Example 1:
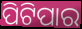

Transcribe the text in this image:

ପିଟିପାର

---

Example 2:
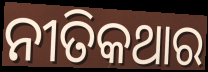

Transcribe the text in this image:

ନୀତିକଥାର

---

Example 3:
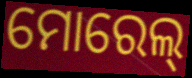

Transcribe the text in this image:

ମୋରେଲ୍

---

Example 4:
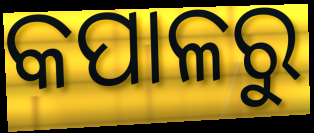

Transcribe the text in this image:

କପାଳରୁ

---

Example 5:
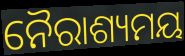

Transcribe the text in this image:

ନୈରାଶ୍ୟମୟ